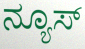
ನ್ಯೂಸ್